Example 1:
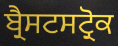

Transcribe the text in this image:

ਬ੍ਰੈਸਟਸਟ੍ਰੋਕ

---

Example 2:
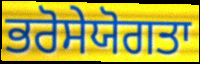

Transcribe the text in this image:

ਭਰੋਸੇਯੋਗਤਾ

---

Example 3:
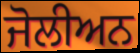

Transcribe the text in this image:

ਜੋਲੀਅਨ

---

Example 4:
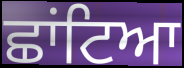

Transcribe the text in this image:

ਛਾਂਟਿਆ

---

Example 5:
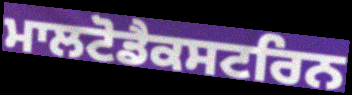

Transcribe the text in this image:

ਮਾਲਟੋਡੈਕਸਟਰਿਨ